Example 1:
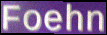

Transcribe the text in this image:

Foehn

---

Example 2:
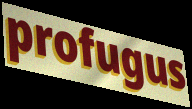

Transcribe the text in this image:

profugus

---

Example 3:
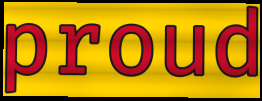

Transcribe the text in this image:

proud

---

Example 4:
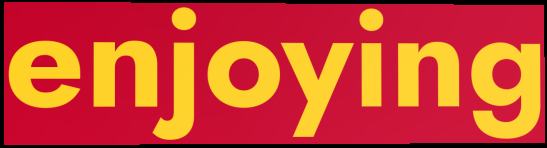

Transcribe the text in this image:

enjoying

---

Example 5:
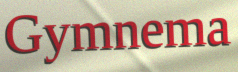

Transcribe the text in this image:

Gymnema